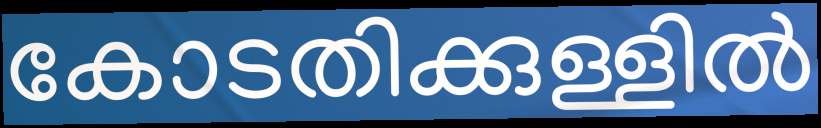
കോടതിക്കുള്ളിൽ